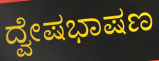
ದ್ವೇಷಭಾಷಣ